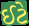
ઈટે